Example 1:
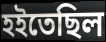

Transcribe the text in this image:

হইতেছিল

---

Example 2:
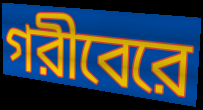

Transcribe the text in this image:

গরীবেরে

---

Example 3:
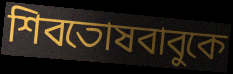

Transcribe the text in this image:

শিবতোষবাবুকে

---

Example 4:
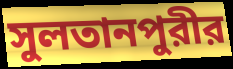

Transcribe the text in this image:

সুলতানপুরীর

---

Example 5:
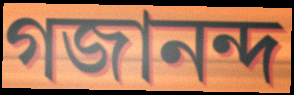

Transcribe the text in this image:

গজানন্দ